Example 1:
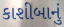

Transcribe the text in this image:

કાશીબાનું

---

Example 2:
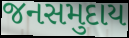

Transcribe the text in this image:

જનસમુદાય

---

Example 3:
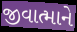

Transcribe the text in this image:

જીવાત્માને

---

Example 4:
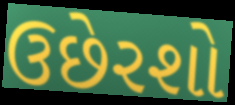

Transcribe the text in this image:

ઉછેરશો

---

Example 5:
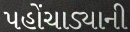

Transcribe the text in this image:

પહોંચાડ્યાની